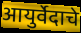
आयुर्वेदाचे